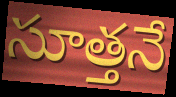
సూత్తనే